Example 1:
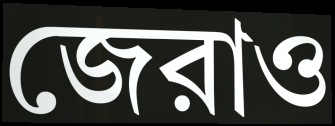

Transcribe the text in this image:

জেরাও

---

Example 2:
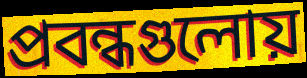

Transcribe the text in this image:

প্রবন্ধগুলোয়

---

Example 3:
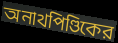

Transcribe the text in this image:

অনাথপিণ্ডিকের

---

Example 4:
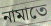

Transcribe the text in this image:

নামাতে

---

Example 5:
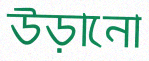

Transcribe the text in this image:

উড়ানো